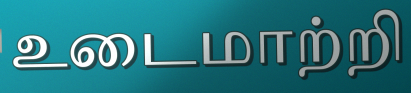
உடைமாற்றி